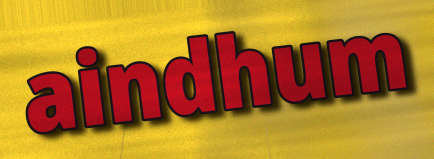
aindhum